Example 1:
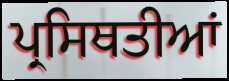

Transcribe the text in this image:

ਪ੍ਰਸਿਥਤੀਆਂ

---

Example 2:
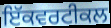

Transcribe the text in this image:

ਇੱਕਵਰਟੀਕਲ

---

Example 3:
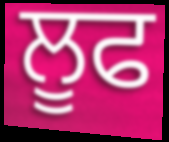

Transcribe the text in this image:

ਲੂਫ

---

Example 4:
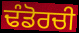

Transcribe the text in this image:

ਢੰਡੋਰਚੀ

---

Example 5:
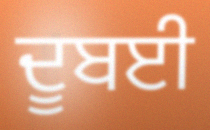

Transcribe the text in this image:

ਦੂਬਈ